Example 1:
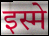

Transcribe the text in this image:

इस्मे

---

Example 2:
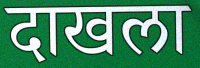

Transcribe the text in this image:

दाखला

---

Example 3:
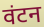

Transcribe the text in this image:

वंटन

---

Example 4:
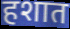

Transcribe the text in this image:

हशात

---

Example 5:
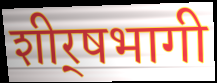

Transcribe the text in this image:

शीर्षभागी